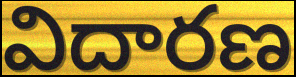
విదారణ